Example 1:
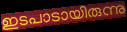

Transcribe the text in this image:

ഇടപാടായിരുന്നു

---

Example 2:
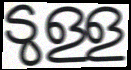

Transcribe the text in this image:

ടുള്ള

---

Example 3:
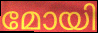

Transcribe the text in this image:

മോയി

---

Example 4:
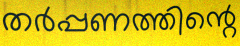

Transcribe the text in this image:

തർപ്പണത്തിന്റെ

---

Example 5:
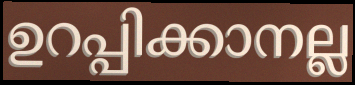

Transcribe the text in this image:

ഉറപ്പിക്കാനല്ല